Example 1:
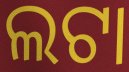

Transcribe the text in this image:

ଲଟା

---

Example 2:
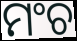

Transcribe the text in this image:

ମଂଚ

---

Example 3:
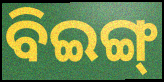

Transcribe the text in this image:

ବିଇଙ୍ଗ୍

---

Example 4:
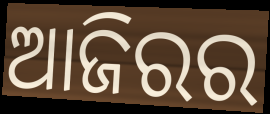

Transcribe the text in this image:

ଆଜିରର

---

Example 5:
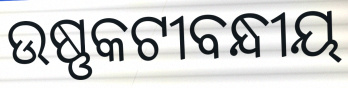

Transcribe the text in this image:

ଉଷ୍ଣକଟୀବନ୍ଧୀୟ